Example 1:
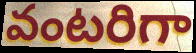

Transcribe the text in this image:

వంటరిగా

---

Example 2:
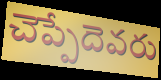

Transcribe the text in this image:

చెప్పేదెవరు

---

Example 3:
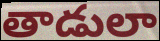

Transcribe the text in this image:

తాడులా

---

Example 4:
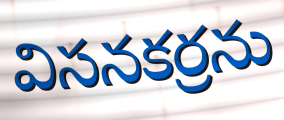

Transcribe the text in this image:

విసనకర్రను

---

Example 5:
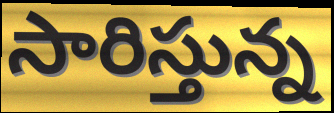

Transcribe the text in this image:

సారిస్తున్న